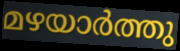
മഴയാർത്തു